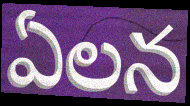
ఏలన